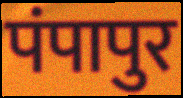
पंपापुर